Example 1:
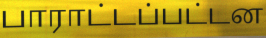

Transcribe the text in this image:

பாராட்டப்பட்டன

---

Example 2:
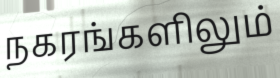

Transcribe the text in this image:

நகரங்களிலும்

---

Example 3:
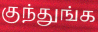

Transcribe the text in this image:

குந்துங்க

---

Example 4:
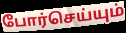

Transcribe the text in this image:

போர்செய்யும்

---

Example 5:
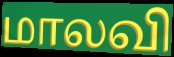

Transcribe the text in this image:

மாலவி